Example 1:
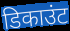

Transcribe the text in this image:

डिकाउंट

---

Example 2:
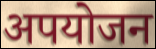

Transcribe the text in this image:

अपयोजन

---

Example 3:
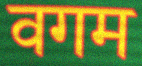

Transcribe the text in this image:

वगम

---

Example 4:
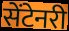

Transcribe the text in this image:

सेंटेनरी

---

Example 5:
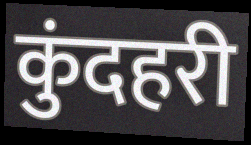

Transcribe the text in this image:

कुंदहरी